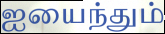
ஐயைந்தும்